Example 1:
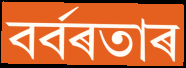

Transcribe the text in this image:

বৰ্বৰতাৰ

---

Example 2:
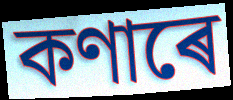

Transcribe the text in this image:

কণাৰে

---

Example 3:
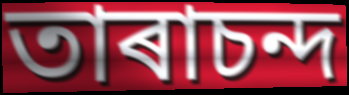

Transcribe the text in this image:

তাৰাচন্দ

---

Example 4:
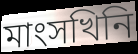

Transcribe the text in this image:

মাংসখিনি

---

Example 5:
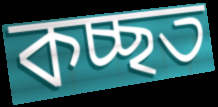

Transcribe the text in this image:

কচ্ছত